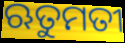
ଋତୁମତୀ